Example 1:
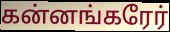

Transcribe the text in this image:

கன்னங்கரேர்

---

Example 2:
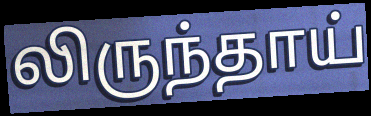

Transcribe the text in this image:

லிருந்தாய்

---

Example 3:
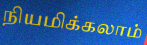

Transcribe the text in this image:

நியமிக்கலாம்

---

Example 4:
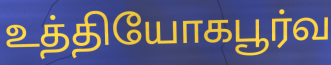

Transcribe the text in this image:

உத்தியோகபூர்வ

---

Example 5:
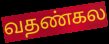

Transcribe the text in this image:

வதண்கல